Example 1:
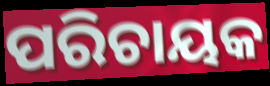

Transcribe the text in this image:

ପରିଚାୟକ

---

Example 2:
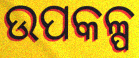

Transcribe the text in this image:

ଉପକଳ୍ପ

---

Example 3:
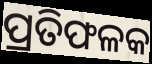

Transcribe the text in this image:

ପ୍ରତିଫଳକ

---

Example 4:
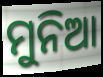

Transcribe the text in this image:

ମୁନିଆ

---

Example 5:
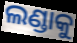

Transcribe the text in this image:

ଲଣ୍ଡାକୁ